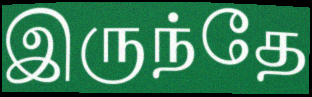
இருந்தே